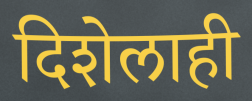
दिशेलाही